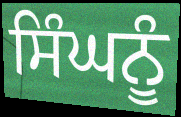
ਸਿੰਘਨੂੰ